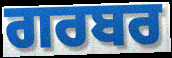
ਗਰਬਰ